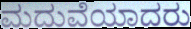
ಮದುವೆಯಾದರು